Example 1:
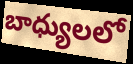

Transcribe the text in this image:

బాధ్యులలో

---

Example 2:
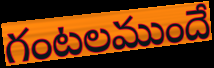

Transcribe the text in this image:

గంటలముందే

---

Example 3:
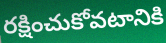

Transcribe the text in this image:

రక్షించుకోవటానికి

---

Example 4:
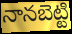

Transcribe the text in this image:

నానబెట్టి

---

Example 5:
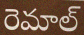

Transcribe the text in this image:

రెమాల్